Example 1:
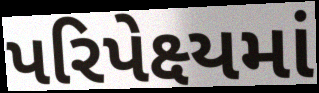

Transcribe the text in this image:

પરિપેક્ષ્યમાં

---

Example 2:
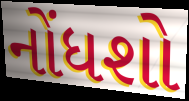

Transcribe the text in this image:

નોંધશો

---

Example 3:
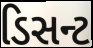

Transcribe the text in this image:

ડિસન્ટ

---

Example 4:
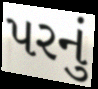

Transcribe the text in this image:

પરનું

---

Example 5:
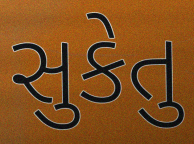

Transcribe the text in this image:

સુકેતુ